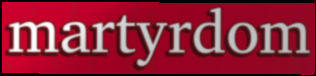
martyrdom